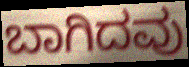
ಬಾಗಿದವು